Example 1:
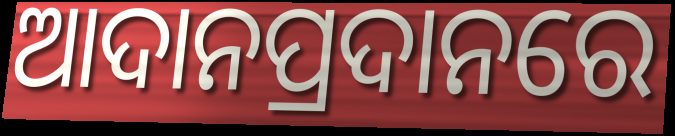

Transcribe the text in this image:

ଆଦାନପ୍ରଦାନରେ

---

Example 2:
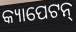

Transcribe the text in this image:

କ୍ୟାପେଟନ୍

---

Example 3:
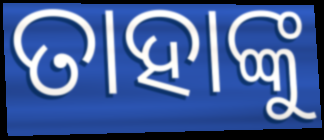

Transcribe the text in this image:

ତାହାଙ୍କୁ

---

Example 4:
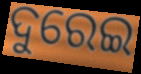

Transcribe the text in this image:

ଦୁରେଇ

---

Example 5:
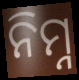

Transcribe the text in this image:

ନିମ୍ନ